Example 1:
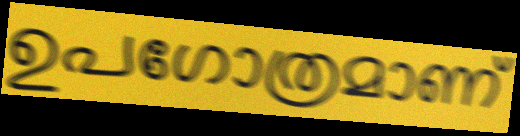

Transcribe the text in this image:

ഉപഗോത്രമാണ്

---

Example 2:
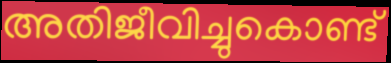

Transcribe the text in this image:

അതിജീവിച്ചുകൊണ്ട്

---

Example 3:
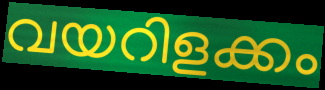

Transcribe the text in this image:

വയറിളക്കം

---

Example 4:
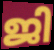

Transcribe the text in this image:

ജി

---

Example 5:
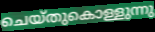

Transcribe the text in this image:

ചെയ്തുകൊള്ളുന്നു